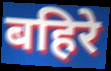
बहिरे